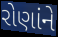
રોણાંને